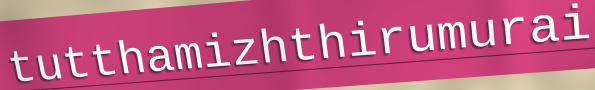
tutthamizhthirumurai